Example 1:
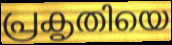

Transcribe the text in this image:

പ്രകൃതിയെ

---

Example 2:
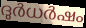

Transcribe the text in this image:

ദുർധർഷം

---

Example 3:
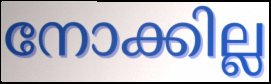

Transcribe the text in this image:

നോക്കില്ല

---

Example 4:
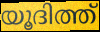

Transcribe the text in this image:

യൂദിത്ത്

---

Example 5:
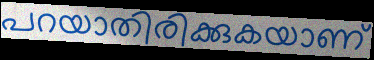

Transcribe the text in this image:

പറയാതിരിക്കുകയാണ്